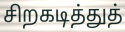
சிறகடித்துத்